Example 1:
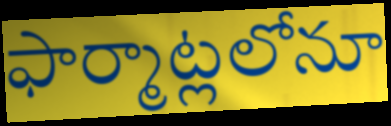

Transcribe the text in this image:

ఫార్మాట్లలోనూ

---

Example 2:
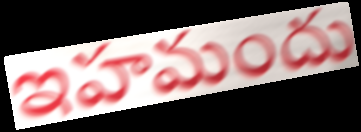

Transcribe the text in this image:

ఇహమందు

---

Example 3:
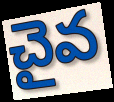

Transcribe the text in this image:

చైవ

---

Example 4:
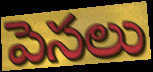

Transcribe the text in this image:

పెసలు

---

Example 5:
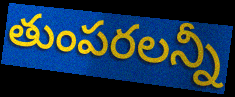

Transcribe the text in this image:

తుంపరలన్నీ